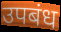
उपबंध